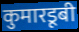
कुमारडूबी